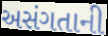
અસંગતાની